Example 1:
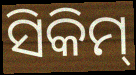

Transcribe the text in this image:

ସିକିମ୍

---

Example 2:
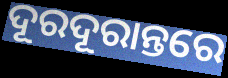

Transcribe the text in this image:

ଦୂରଦୂରାନ୍ତରେ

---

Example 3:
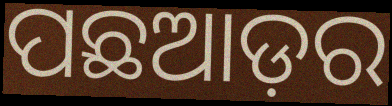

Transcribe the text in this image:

ପଛଆଡ଼ର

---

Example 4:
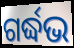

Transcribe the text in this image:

ଗର୍ଦ୍ଧଭ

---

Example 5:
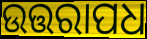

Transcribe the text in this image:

ଉତ୍ତରାପଧ